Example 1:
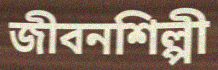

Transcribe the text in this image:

জীবনশিল্পী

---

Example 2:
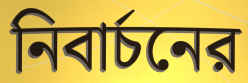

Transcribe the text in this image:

নিবার্চনের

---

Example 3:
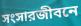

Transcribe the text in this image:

সংসারজীবনে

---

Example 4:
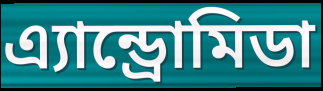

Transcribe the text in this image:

এ্যান্ড্রোমিডা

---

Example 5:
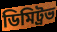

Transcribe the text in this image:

ডিমিট্রভ